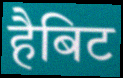
हैबिट